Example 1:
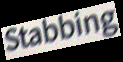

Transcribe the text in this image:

Stabbing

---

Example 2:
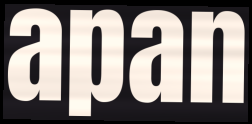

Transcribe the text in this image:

apan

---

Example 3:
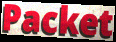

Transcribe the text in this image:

Packet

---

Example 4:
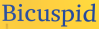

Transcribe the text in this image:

Bicuspid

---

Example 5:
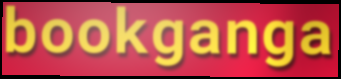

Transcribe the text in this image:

bookganga